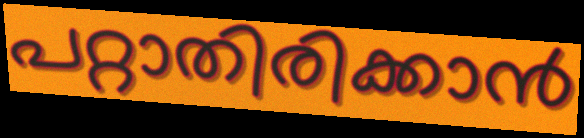
പറ്റാതിരിക്കാൻ